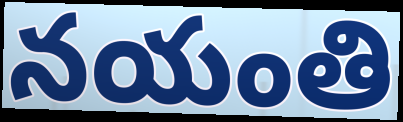
నయంతి